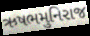
ઋષભમુનિરાજ